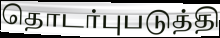
தொடர்புபடுத்தி